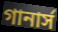
গানার্স